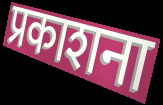
प्रकाशना